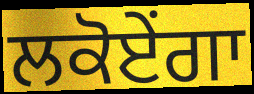
ਲਕੋਏਂਗਾ